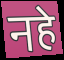
नहे